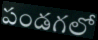
పండగలో